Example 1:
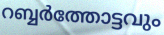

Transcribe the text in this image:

റബ്ബർത്തോട്ടവും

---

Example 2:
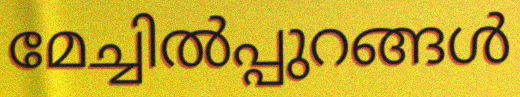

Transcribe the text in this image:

മേച്ചിൽപ്പുറങ്ങൾ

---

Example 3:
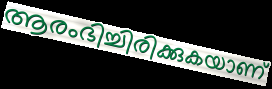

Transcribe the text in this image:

ആരംഭിച്ചിരിക്കുകയാണ്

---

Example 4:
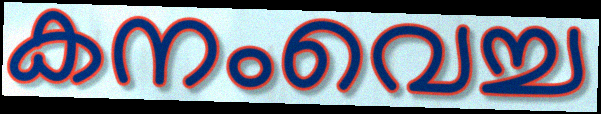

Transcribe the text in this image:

കനംവെച്ച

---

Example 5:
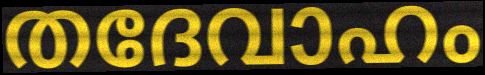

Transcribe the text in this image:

തദേവാഹം